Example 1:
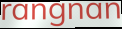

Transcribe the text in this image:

rangnan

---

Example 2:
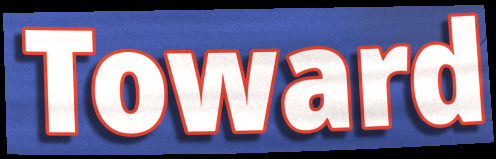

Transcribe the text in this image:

Toward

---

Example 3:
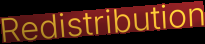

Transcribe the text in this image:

Redistribution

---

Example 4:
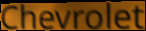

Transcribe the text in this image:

Chevrolet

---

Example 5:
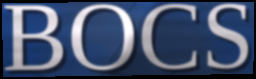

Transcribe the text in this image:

BOCS